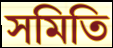
সমিতি